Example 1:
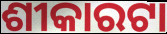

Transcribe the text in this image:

ଶୀକାରଟା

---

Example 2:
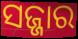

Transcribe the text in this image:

ସଜ୍ଜାର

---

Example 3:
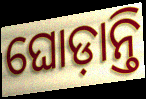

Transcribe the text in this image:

ଘୋଡ଼ାନ୍ତି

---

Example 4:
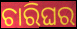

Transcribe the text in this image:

ଚାରିଘର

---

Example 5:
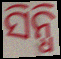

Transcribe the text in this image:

ସିନ୍ଧି